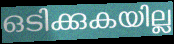
ഒടിക്കുകയില്ല